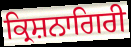
ਕ੍ਰਿਸ਼ਨਾਗਿਰੀ